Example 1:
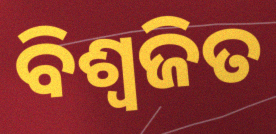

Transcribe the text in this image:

ବିଶ୍ଵଜିତ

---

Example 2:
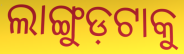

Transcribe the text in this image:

ଲାଙ୍ଗୁଡ଼ଟାକୁ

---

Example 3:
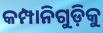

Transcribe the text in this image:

କମ୍ପାନିଗୁଡ଼ିକୁ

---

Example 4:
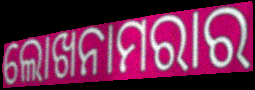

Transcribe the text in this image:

ଲୋଖନାମରାର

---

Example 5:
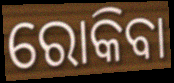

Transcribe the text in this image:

ରୋକିବା